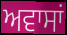
ਅਵਾਸਾਂ